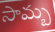
సామ్బ